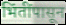
भिंतींपासून